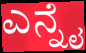
ಎನ್ನೈ